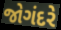
જોગંદરે